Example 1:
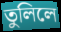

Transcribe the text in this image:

তুলিলে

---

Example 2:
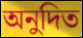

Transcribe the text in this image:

অনুদিত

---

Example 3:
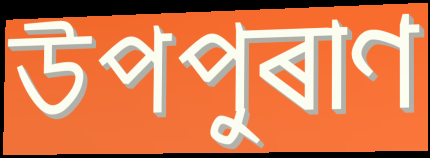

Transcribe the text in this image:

উপপুৰাণ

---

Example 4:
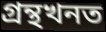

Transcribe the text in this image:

গ্ৰন্থখনত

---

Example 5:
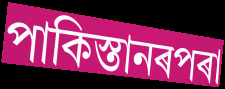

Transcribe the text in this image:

পাকিস্তানৰপৰা